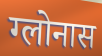
ग्लोनास